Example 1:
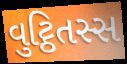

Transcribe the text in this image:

વુટ્ઠિતસ્સ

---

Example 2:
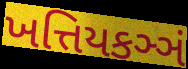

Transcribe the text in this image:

ખત્તિયકઞ્ઞં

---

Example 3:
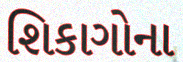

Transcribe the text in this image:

શિકાગોના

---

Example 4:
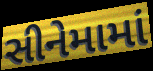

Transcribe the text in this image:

સીનેમામાં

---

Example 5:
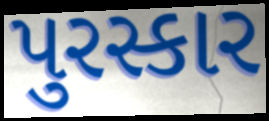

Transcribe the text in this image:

પુરસ્કાર